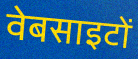
वेबसाइटों